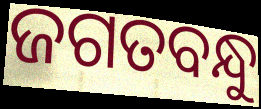
ଜଗତବନ୍ଧୁ